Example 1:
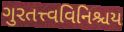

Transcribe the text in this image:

ગુરતત્ત્વવિનિશ્ચય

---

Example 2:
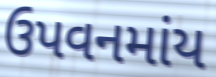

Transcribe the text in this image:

ઉપવનમાંય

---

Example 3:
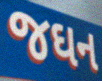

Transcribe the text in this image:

જઘન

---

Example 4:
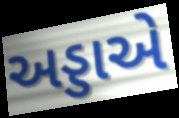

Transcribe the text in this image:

અડ્ડાએ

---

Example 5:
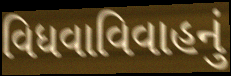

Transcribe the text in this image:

વિધવાવિવાહનું